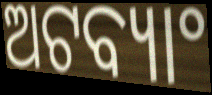
ଅଟବ୍ୟାଂ